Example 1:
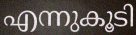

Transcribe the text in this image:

എന്നുകൂടി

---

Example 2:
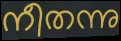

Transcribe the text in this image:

നീതന്നു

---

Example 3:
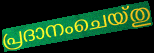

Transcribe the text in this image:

പ്രദാനംചെയ്തു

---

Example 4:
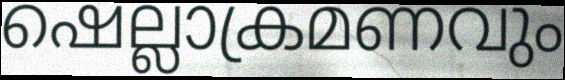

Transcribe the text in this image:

ഷെല്ലാക്രമണവും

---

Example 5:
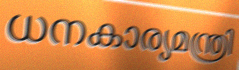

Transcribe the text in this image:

ധനകാര്യമന്ത്രി